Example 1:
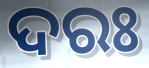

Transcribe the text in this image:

ଦରଃ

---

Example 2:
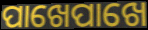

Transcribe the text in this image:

ପାଖେପାଖେ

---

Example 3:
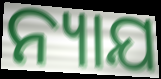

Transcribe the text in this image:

ନ୍ୟାଯ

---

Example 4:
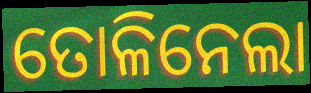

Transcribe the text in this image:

ତୋଳିନେଲା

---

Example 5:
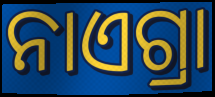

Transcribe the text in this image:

ନାଏଗ୍ରା